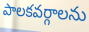
పాలకవర్గాలను